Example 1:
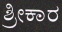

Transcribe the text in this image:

ಶ್ರೀಕಾರ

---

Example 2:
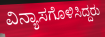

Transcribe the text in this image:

ವಿನ್ಯಾಸಗೊಳಿಸಿದ್ದರು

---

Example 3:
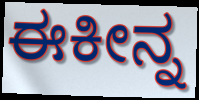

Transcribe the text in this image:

ಈಕೀನ್ನ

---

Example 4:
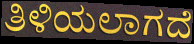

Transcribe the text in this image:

ತಿಳಿಯಲಾಗದೆ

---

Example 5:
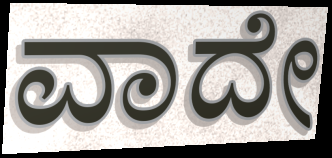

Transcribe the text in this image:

ವಾದೇ